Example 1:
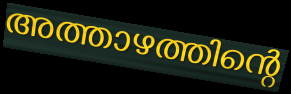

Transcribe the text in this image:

അത്താഴത്തിന്റെ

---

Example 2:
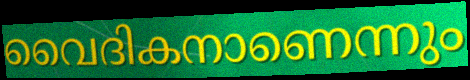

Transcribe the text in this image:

വൈദികനാണെന്നും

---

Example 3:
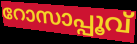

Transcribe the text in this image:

റോസാപ്പൂവ്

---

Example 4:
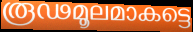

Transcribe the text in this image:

രൂഢമൂലമാകട്ടെ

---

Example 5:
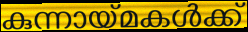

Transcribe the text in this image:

കുന്നായ്മകൾക്ക്